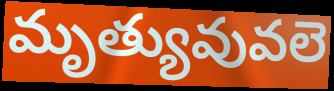
మృత్యువువలె